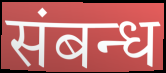
संबन्ध